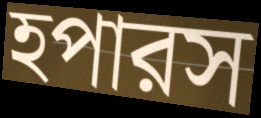
হপারস